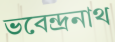
ভবেন্দ্ৰনাথ